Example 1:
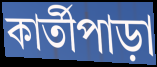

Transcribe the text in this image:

কার্তীপাড়া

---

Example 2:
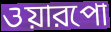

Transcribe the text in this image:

ওয়ারপো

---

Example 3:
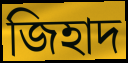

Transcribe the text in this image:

জিহাদ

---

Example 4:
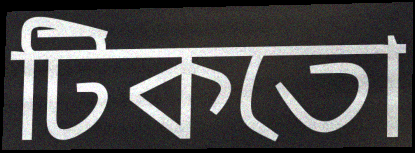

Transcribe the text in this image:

টিকতো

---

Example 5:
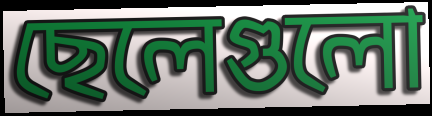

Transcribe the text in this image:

ছেলেগুলো